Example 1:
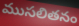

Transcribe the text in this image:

ముసలితనం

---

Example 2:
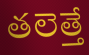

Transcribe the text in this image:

తలెత్తే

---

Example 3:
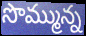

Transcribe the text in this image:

సొమ్మున్న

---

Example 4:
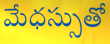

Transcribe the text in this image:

మేధస్సుతో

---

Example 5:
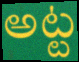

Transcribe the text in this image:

అట్ట